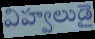
విహ్వలుడై